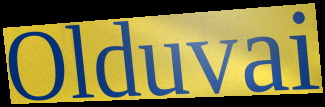
Olduvai